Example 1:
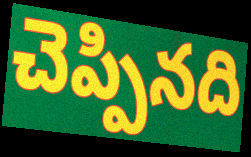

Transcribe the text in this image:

చెప్పినది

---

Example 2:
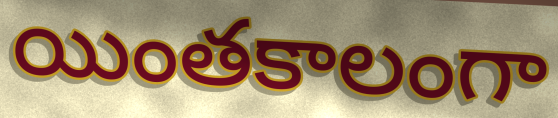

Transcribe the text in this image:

యింతకాలంగా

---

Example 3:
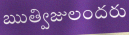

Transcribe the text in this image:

ఋత్విజులందరు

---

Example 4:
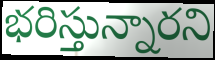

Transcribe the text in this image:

భరిస్తున్నారని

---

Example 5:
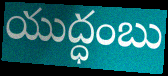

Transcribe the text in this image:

యుద్ధంబు